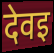
देवइ